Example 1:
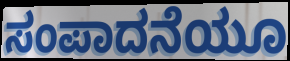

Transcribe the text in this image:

ಸಂಪಾದನೆಯೂ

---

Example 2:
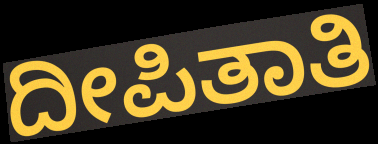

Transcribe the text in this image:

ದೀಪಿತಾತಿ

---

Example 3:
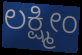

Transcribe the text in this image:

ಲಕ್ಷ್ಮೀಂ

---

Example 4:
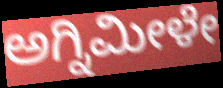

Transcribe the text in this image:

ಅಗ್ನಿಮೀಳೇ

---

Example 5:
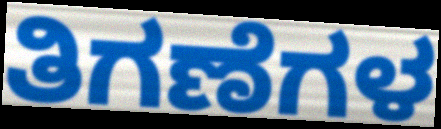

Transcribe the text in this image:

ತಿಗಣೆಗಳ